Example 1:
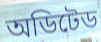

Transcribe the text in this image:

অডিটেড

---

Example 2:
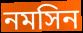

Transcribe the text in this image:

নমসিন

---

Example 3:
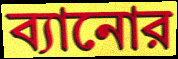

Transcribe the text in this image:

ব্যানোর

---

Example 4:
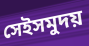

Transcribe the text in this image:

সেইসমুদয়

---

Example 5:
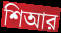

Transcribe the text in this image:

শিআর